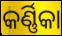
କର୍ଣ୍ଣିକା